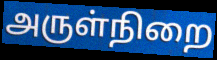
அருள்நிறை